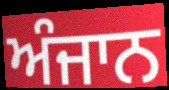
ਅੰਜਾਨ